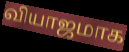
வியாஜமாக